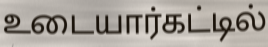
உடையார்கட்டில்